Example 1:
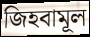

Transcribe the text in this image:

জিহবামূল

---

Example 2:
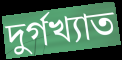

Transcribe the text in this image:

দুর্গখ্যাত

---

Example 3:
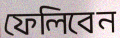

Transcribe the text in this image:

ফেলিবেন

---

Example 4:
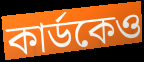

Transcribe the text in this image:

কার্ডকেও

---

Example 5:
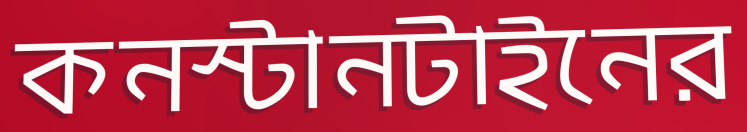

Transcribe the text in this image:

কনস্টানটাইনের